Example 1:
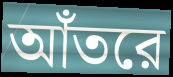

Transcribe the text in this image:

আঁতরে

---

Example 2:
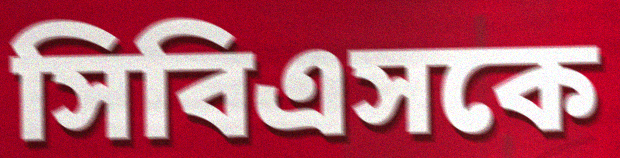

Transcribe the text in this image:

সিবিএসকে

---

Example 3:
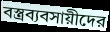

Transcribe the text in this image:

বস্ত্রব্যবসায়ীদের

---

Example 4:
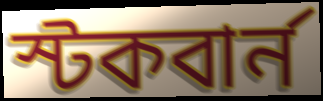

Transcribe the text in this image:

স্টকবার্ন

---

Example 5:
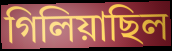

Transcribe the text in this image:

গিলিয়াছিল